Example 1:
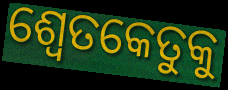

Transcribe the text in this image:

ଶ୍ୱେତକେତୁକୁ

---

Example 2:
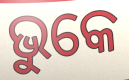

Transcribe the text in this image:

ଭୁକେ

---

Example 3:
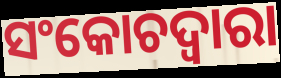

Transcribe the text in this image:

ସଂକୋଚଦ୍ୱାରା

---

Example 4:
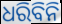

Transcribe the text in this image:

ଧରିବିନି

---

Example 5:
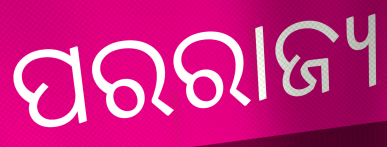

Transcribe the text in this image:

ପରରାଜ୍ୟ